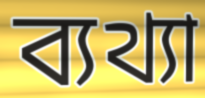
ব্যথ্যা